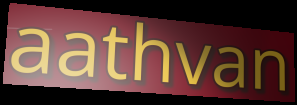
aathvan